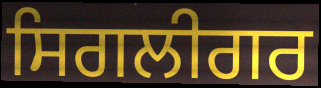
ਸਿਗਲੀਗਰ